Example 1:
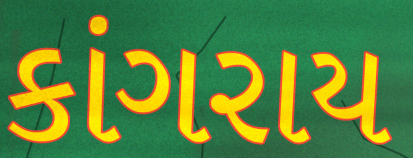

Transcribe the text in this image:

કાંગરાય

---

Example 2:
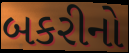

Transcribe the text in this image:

બકરીનો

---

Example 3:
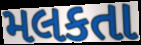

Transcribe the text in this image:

મલકતા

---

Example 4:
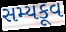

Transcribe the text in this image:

સમ્યકૂવ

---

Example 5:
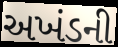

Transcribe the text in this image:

અખંડની